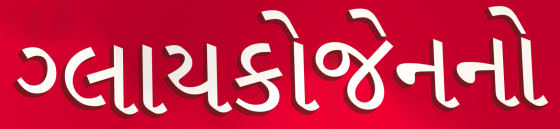
ગ્લાયકોજેનનો